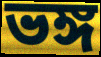
ভঙ্গ